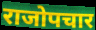
राजोपचार